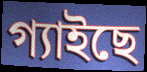
গ্যাইছে